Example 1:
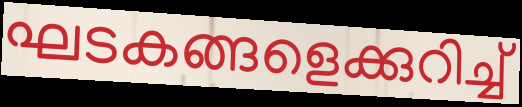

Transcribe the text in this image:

ഘടകങ്ങളെക്കുറിച്ച്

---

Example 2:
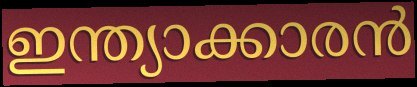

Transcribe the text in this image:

ഇന്ത്യാക്കാരൻ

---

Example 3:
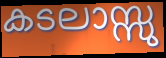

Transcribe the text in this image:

കടലാസ്സു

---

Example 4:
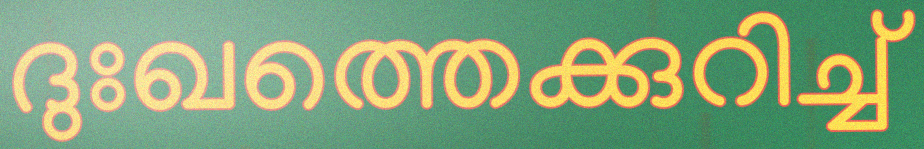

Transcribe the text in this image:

ദുഃഖത്തെക്കുറിച്ച്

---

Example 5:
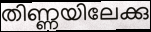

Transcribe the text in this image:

തിണ്ണയിലേക്കു